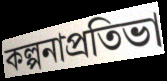
কল্পনাপ্রতিভা